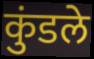
कुंडले